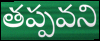
తప్పవని